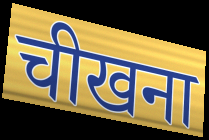
चीखना